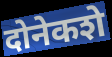
दोनेकशे